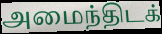
அமைந்திடக்